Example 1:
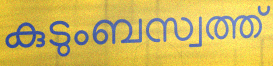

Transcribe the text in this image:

കുടുംബസ്വത്ത്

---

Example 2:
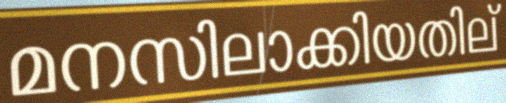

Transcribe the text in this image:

മനസിലാക്കിയതില്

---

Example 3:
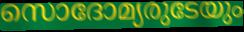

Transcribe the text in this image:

സൊദോമ്യരുടേയും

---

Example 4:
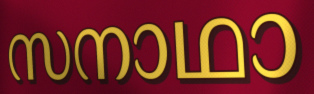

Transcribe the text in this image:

സനാഥാ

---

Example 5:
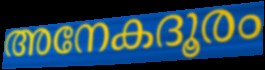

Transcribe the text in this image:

അനേകദൂരം